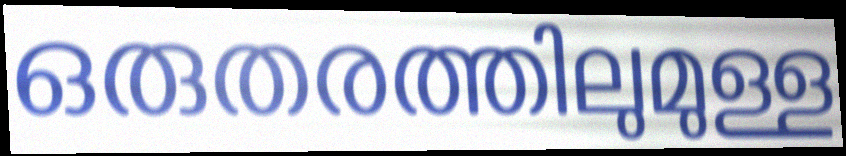
ഒരുതരത്തിലുമുള്ള